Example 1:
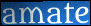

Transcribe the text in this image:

amate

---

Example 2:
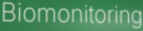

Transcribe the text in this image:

Biomonitoring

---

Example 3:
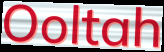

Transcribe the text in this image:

Ooltah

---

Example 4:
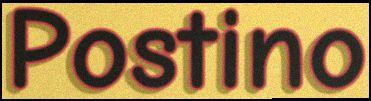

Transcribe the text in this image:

Postino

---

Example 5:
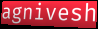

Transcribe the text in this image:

agnivesh